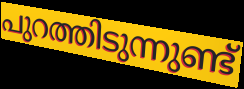
പുറത്തിടുന്നുണ്ട്